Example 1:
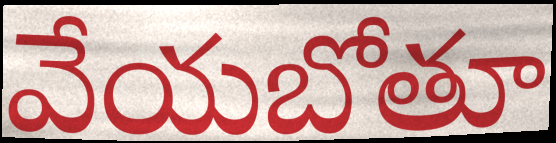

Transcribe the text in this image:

వేయబోతూ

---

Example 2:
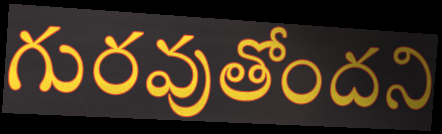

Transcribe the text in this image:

గురవుతోందని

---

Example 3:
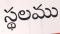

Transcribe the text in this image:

స్థలము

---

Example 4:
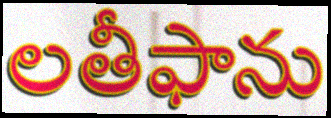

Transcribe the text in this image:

లతీఫాను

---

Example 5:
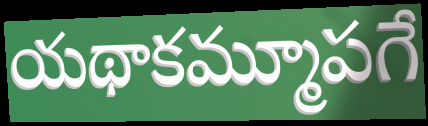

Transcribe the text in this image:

యథాకమ్మూపగే